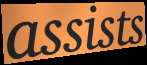
assists